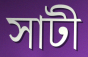
সাটী